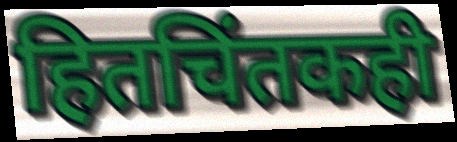
हितचिंतकही